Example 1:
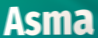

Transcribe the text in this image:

Asma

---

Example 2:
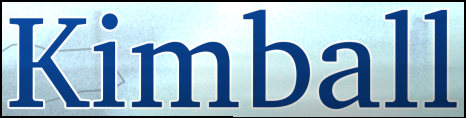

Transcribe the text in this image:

Kimball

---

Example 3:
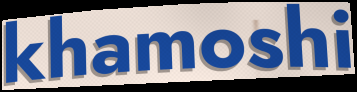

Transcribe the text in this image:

khamoshi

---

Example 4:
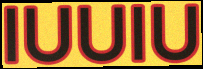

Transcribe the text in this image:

IUUIU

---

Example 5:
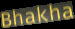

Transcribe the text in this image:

Bhakha